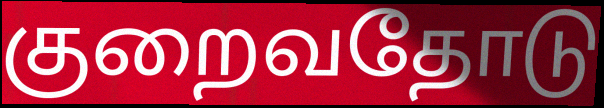
குறைவதோடு